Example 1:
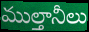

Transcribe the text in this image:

ముల్తానీలు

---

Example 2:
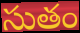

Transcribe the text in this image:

సుతం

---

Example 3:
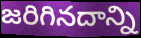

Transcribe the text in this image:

జరిగినదాన్ని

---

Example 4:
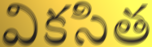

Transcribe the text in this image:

వికసిత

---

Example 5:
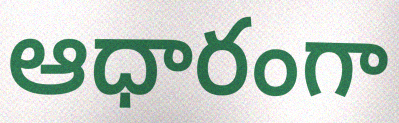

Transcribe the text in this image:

ఆధారంగా